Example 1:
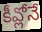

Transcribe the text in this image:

కీవ్లోనే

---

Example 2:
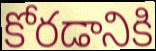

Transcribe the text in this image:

కోరడానికి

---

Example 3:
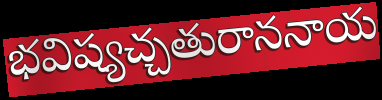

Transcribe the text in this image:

భవిష్యచ్చతురాననాయ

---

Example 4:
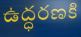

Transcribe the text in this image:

ఉద్ధరణకి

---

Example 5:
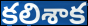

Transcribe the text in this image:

కలిశాక